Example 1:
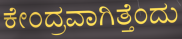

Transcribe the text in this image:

ಕೇಂದ್ರವಾಗಿತ್ತೆಂದು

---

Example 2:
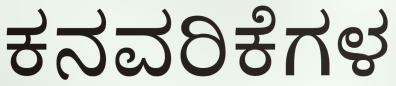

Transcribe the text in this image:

ಕನವರಿಕೆಗಳ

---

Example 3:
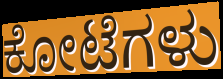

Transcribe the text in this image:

ಕೋಟೆಗಳು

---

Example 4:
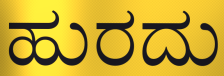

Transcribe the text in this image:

ಹುರದು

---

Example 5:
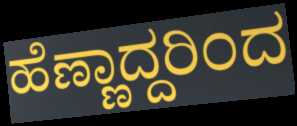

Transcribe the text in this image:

ಹೆಣ್ಣಾದ್ದರಿಂದ